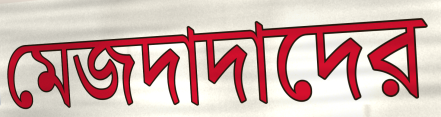
মেজদাদাদের